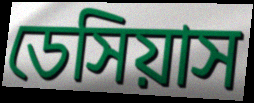
ডেসিয়াস